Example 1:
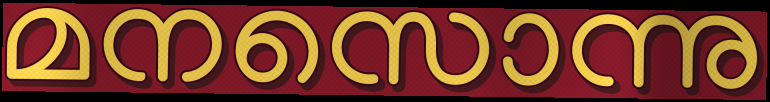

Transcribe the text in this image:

മനസൊന്നു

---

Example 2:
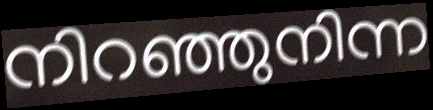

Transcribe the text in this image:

നിറഞ്ഞുനിന്ന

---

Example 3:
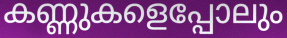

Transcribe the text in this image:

കണ്ണുകളെപ്പോലും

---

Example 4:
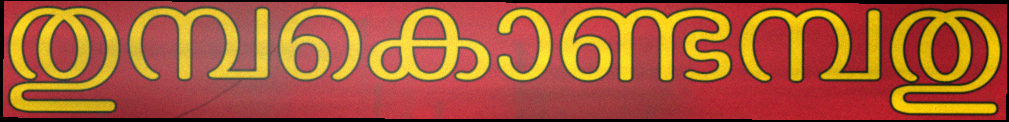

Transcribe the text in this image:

തുമ്പകൊണ്ടമ്പതു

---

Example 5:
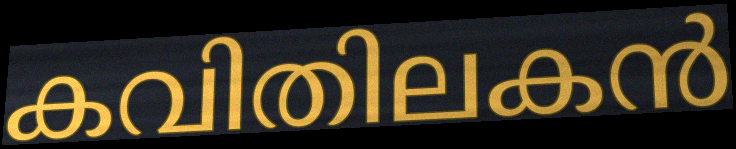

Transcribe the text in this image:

കവിതിലകൻ